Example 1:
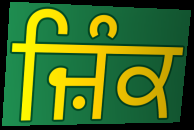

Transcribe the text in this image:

ਜ਼ਿੰਕ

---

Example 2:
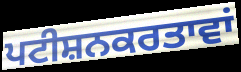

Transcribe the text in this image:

ਪਟੀਸ਼ਨਕਰਤਾਵਾਂ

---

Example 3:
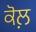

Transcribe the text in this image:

ਕੋਲ਼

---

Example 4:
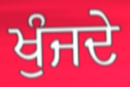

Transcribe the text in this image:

ਖੁੰਜਦੇ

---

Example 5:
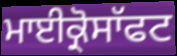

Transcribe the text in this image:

ਮਾਈਕ੍ਰੋਸਾੱਫਟ